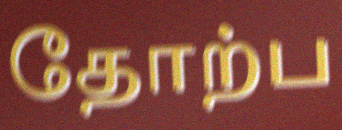
தோற்ப